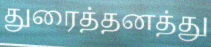
துரைத்தனத்து